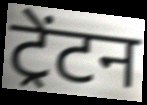
ट्रेंटन